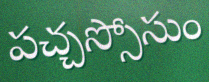
పచ్చస్సోసుం